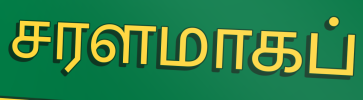
சரளமாகப்